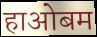
हाओबम